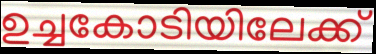
ഉച്ചകോടിയിലേക്ക്